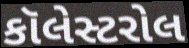
કૉલેસ્ટરોલ